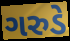
ગરુડે